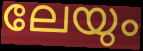
ലേയും